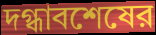
দগ্ধাবশেষের